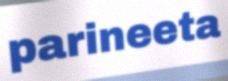
parineeta